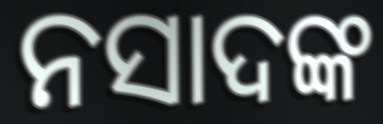
ନସାଦଙ୍କ